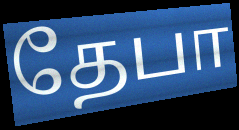
தேபா